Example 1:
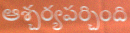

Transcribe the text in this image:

ఆశ్చర్యపర్చింది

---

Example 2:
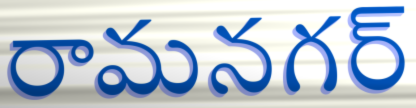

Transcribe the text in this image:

రామనగర్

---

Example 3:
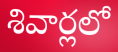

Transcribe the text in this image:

శివార్లలో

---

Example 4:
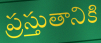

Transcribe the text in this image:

ప్రస్తుతానికి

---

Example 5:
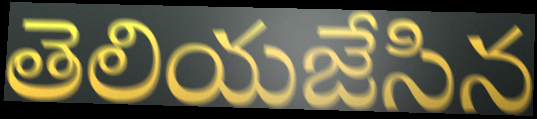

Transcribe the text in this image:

తెలియజేసిన